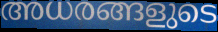
അധരങ്ങളുടെ